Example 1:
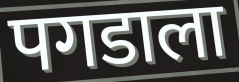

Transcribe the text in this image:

पगडाला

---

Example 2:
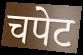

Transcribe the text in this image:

चपेट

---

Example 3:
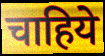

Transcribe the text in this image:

चाहिये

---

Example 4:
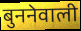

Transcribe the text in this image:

बुननेवाली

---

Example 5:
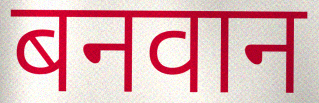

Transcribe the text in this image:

बनवान